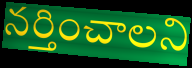
నర్తించాలని